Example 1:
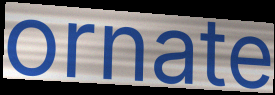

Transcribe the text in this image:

ornate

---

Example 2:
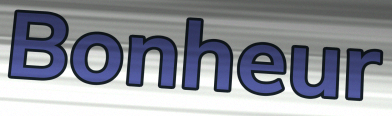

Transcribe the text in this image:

Bonheur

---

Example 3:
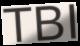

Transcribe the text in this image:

TBI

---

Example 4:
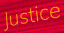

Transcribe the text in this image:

Justice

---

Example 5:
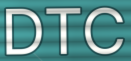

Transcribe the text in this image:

DTC